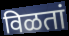
विळतां